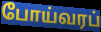
போய்வரப்